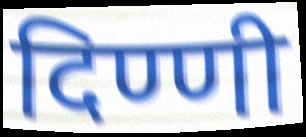
दिण्णी